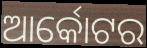
ଆର୍କୋଟର